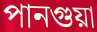
পানগুয়া